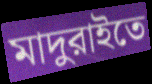
মাদুরাইতে